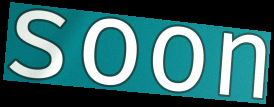
soon